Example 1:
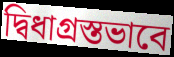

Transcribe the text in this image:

দ্বিধাগ্রস্তভাবে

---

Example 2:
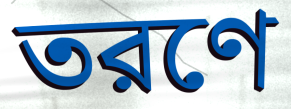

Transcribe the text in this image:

তরণে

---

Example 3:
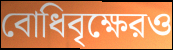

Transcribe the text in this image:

বোধিবৃক্ষেরও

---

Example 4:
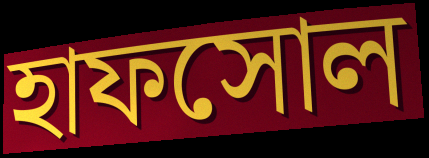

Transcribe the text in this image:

হাফসোল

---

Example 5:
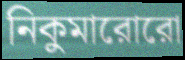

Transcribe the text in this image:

নিকুমারোরো